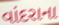
વાંદરાના